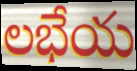
లభేయ